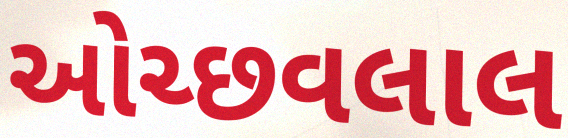
ઓચ્છવલાલ